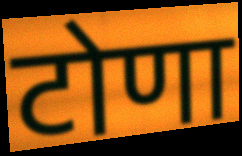
टोणा